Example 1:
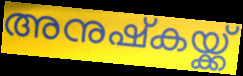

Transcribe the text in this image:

അനുഷ്കയ്ക്ക്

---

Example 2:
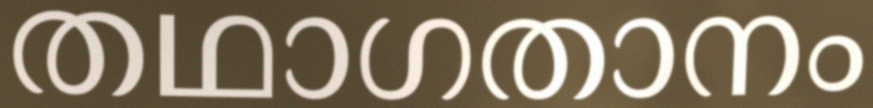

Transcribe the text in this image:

തഥാഗതാനം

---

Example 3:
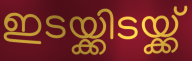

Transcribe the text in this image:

ഇടയ്ക്കിടയ്ക്ക്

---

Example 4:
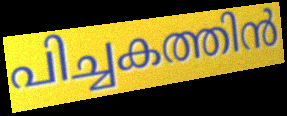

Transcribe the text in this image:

പിച്ചകത്തിൻ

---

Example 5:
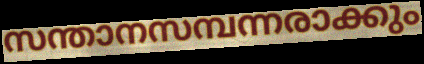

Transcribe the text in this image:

സന്താനസമ്പന്നരാക്കും